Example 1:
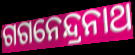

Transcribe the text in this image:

ଗଗନେନ୍ଦ୍ରନାଥ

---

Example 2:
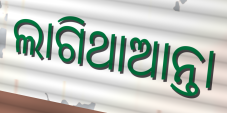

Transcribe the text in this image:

ଲାଗିଥାଆନ୍ତା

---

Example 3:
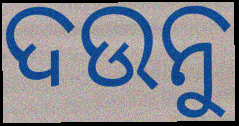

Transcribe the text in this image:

ଦଉନୁ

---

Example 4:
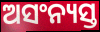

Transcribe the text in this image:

ଅସଂନ୍ୟସ୍ତ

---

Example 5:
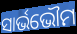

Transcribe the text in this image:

ସାର୍ଭଭୌମ